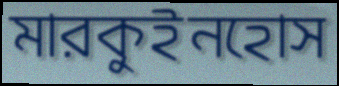
মারকুইনহোস